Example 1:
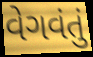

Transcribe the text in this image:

વેગવંતું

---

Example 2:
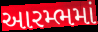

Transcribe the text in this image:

આરમ્ભમાં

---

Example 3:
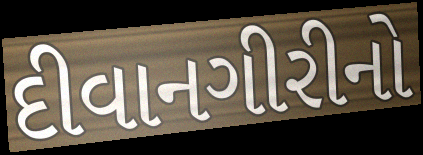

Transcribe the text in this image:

દીવાનગીરીનો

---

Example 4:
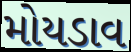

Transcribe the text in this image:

મોયડાવ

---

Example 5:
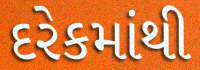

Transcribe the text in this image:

દરેકમાંથી